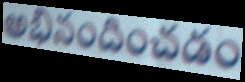
అభినందించడం